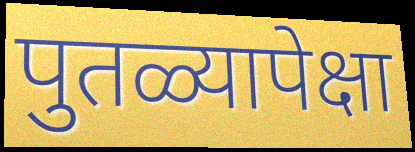
पुतळ्यापेक्षा